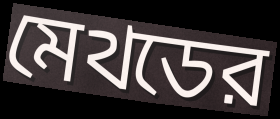
মেথডের